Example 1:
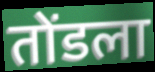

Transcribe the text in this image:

तोंडला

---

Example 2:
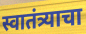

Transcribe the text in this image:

स्वातंत्र्याचा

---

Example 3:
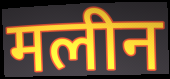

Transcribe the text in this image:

मलीन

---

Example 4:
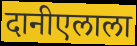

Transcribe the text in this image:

दानीएलाला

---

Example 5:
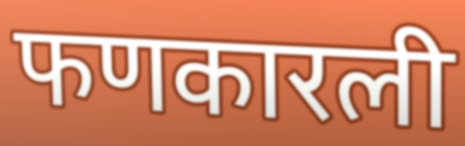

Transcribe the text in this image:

फणकारली